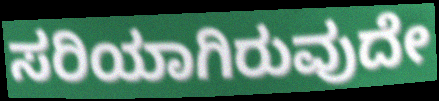
ಸರಿಯಾಗಿರುವುದೇ